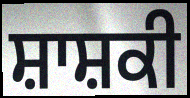
ਸ਼ਾਸ਼ਕੀ